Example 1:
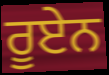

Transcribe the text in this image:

ਰੂਏਨ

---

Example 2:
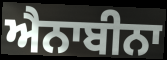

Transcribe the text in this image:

ਐਨਾਬੀਨਾ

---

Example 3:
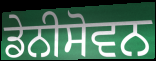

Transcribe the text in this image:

ਡੇਨੀਸੋਵਨ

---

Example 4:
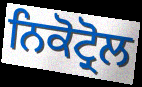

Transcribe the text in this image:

ਨਿਕੋਟ੍ਰੋਲ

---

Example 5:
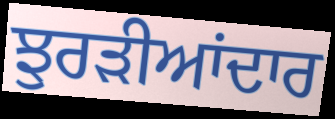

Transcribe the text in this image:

ਝੁਰੜੀਆਂਦਾਰ